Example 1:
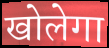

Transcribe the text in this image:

खोलेगा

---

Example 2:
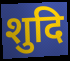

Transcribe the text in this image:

शुदि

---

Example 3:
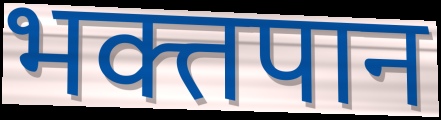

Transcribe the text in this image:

भक्तपान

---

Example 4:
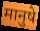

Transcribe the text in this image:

मानुषे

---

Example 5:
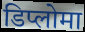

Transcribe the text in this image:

डिप्‍लोमा